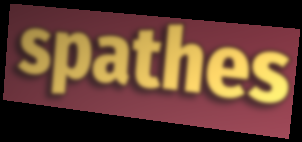
spathes